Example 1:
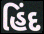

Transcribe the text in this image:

હિંદ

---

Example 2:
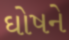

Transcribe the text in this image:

ઘોષને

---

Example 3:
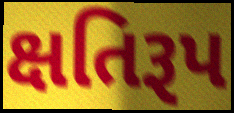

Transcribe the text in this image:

ક્ષતિરૂપ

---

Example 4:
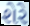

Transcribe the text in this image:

શેરે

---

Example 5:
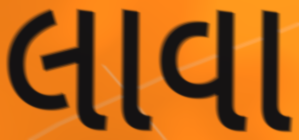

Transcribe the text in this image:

લાવા